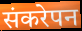
संकरेपन